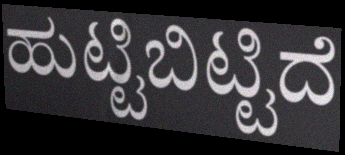
ಹುಟ್ಟಿಬಿಟ್ಟಿದೆ